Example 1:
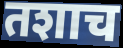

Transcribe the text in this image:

तशाच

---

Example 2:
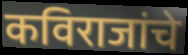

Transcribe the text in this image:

कविराजांचे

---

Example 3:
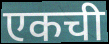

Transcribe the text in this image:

एकची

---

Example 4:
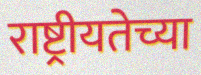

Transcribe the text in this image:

राष्ट्रीयतेच्या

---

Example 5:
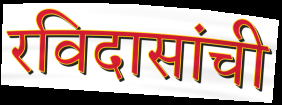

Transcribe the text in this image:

रविदासांची